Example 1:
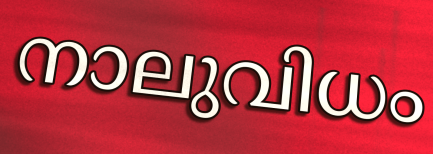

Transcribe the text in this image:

നാലുവിധം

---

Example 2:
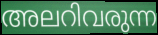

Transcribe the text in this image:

അലറിവരുന്ന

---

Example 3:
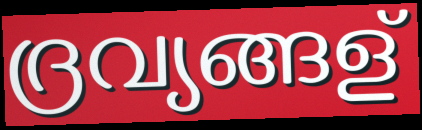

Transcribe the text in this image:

ദ്രവ്യങ്ങള്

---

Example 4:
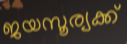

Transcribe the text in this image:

ജയസൂര്യക്ക്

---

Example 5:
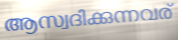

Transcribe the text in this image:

ആസ്വദിക്കുന്നവര്